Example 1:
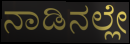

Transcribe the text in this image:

ನಾಡಿನಲ್ಲೇ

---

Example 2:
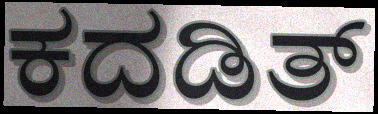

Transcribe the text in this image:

ಕದಡಿತ್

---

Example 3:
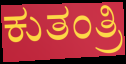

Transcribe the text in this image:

ಕುತಂತ್ರಿ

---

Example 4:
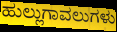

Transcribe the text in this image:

ಹುಲ್ಲುಗಾವಲುಗಳು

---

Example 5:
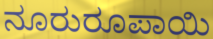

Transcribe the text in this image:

ನೂರುರೂಪಾಯಿ